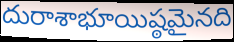
దురాశాభూయిష్ఠమైనది